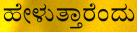
ಹೇಳುತ್ತಾರೆಂದು